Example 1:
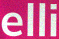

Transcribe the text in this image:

elli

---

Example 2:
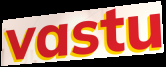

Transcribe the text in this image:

vastu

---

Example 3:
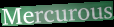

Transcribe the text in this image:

Mercurous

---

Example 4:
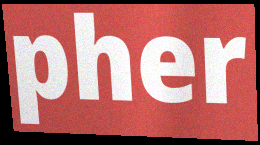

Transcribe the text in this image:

pher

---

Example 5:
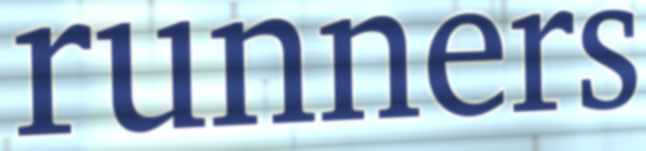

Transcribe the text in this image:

runners